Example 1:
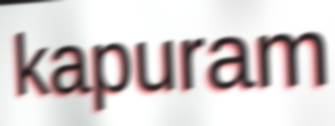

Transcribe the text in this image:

kapuram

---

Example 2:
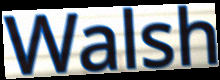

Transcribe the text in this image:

Walsh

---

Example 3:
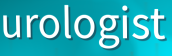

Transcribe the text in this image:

urologist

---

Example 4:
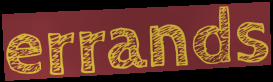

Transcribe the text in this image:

errands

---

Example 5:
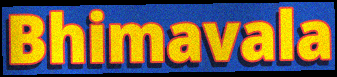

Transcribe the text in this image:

Bhimavala